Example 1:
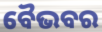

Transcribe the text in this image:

ବୈଭବର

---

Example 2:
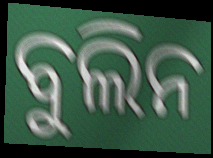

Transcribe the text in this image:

ବୁଲିନ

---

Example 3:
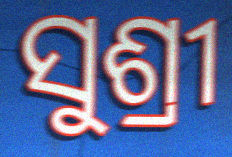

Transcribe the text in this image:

ସୁଶ୍ରୀ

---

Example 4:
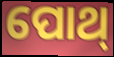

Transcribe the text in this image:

ପୋଥ୍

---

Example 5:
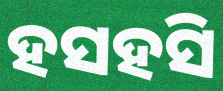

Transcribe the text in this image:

ହସହସି